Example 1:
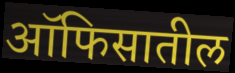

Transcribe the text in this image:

ऑफिसातील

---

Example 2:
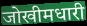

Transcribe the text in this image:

जोखीमधारी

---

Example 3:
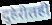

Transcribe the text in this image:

दुहेरीतही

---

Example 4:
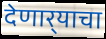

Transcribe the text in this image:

देणार्‍याचा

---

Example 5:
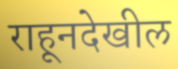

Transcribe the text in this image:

राहूनदेखील